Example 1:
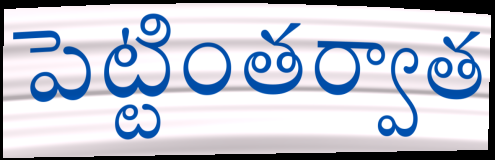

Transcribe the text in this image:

పెట్టింతర్వాత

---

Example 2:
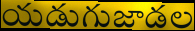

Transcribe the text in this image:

యడుగుజాడల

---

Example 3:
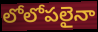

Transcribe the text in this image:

లోలోపలైనా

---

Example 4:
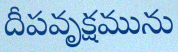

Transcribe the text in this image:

దీపవృక్షమును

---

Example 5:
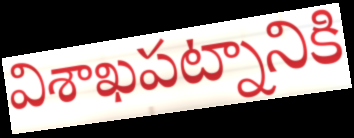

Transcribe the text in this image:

విశాఖపట్నానికి